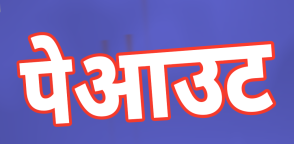
पेआउट